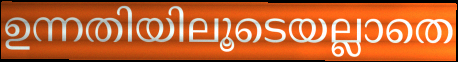
ഉന്നതിയിലൂടെയല്ലാതെ